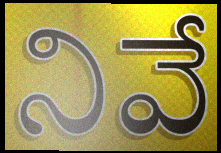
నివే